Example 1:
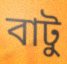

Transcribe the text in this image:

বাটু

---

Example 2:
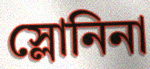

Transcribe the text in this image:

স্লোনিনা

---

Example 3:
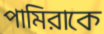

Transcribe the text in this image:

পামিরাকে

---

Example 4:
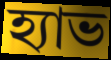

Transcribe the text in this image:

হ্যাভ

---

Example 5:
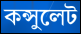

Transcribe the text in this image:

কন্সুলেট